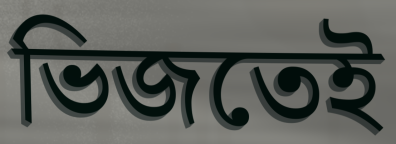
ভিজতেই